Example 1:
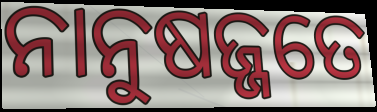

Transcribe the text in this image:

ନାନୁଷଜ୍ଜତେ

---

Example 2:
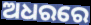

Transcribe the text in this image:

ଅଧରରେ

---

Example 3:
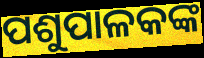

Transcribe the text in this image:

ପଶୁପାଳକଙ୍କ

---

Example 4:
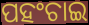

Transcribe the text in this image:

ପହଂଚାଇ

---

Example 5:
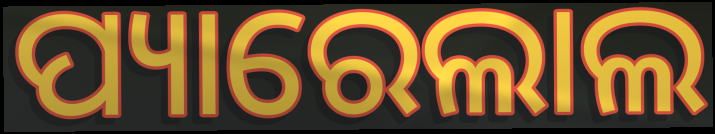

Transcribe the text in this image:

ପ୍ୟାରେଲାଲ